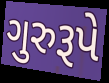
ગુરુરૂપે